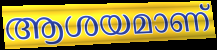
ആശയമാണ്